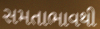
સમતાભાવથી